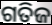
ଗତିଜ